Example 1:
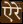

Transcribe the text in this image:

ऐरे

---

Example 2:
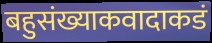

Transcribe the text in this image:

बहुसंख्याकवादाकडं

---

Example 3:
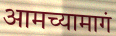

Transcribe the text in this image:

आमच्यामागं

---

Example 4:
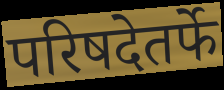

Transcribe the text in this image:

परिषदेतर्फे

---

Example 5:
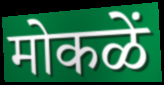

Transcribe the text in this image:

मोकळें